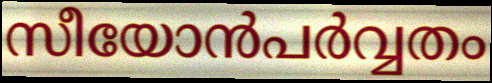
സീയോൻപർവ്വതം